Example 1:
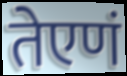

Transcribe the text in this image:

तेएणं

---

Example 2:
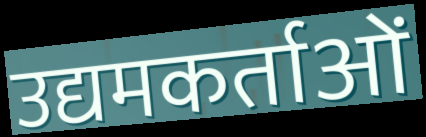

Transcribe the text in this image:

उद्यमकर्ताओं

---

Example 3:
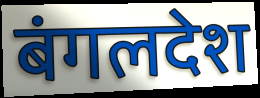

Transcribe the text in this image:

बंगलदेश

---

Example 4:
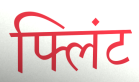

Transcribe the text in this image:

फ्लिंट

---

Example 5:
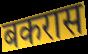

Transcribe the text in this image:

बकरास